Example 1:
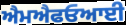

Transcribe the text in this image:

ਐਮਐਫਓਆਈ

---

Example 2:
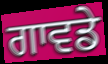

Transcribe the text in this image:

ਗਾਵਡੇ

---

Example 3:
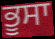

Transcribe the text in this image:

ਭੂਸਾ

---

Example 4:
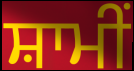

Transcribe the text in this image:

ਸ਼ਾਮੀਂ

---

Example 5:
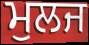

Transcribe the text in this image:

ਮੁਲਜ